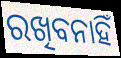
ରଖିବନାହିଁ